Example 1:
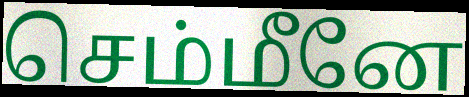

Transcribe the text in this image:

செம்மீனே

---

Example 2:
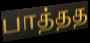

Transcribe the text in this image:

பாத்தத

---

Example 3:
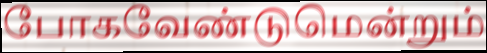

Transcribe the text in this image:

போகவேண்டுமென்றும்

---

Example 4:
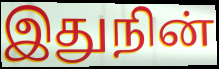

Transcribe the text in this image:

இதுநின்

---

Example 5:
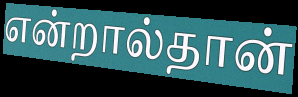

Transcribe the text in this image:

என்றால்தான்